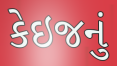
કેઇજનું